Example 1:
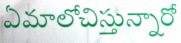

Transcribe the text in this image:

ఏమాలోచిస్తున్నారో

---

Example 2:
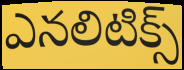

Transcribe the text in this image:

ఎనలిటిక్స్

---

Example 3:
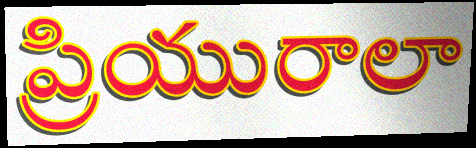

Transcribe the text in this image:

ప్రియురాలా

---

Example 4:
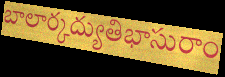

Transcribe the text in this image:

బాలార్కద్యుతిభాసురాం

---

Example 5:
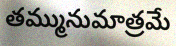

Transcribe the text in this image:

తమ్మునుమాత్రమే